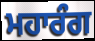
ਮਹਾਰੰਗ